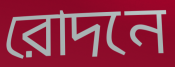
রোদনে